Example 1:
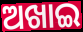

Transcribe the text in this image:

ଅଖାଇ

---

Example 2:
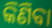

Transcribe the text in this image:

କିଣିବା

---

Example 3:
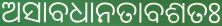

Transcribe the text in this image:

ଅସାବଧାନତାବଶତଃ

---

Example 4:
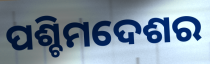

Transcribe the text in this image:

ପଶ୍ଚିମଦେଶର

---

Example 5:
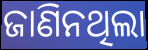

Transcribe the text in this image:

ଜାଣିନଥିଲା